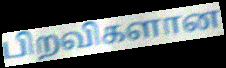
பிறவிகளான